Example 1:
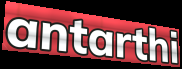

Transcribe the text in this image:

antarthi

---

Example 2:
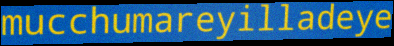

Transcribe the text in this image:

mucchumareyilladeye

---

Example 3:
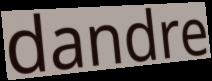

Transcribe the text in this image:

dandre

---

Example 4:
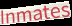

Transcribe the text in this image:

Inmates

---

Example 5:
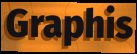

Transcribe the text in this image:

Graphis